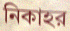
নিকাহর